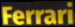
Ferrari